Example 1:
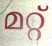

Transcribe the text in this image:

മറ്റ്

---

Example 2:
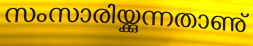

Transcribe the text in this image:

സംസാരിയ്ക്കുന്നതാണു്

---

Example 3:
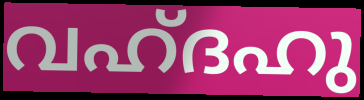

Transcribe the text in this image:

വഹ്ദഹു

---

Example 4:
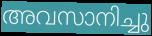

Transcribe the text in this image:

അവസാനിച്ചു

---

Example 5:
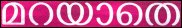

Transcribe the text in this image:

മറയാതെ